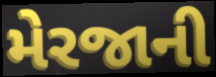
મેરજાની